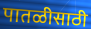
पातळीसाठी